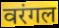
वरंगल